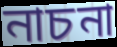
নাচনা